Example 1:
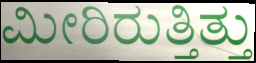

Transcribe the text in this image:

ಮೀರಿರುತ್ತಿತ್ತು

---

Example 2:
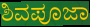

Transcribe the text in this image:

ಶಿವಪೂಜಾ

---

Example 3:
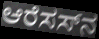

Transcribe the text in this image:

ಆರೆಸಸ್‌ನ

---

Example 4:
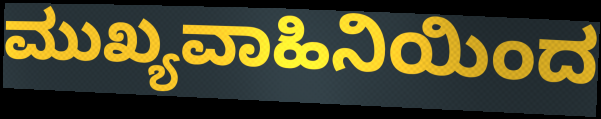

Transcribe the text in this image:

ಮುಖ್ಯವಾಹಿನಿಯಿಂದ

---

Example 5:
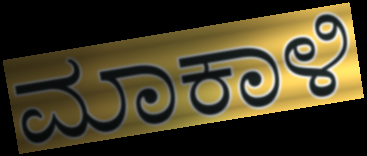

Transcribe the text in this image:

ಮಾಕಾಳಿ